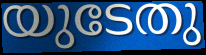
യുടേതു